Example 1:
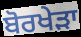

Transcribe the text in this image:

ਬੋਰਖੇੜਾ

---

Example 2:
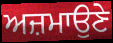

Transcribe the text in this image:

ਅਜ਼ਮਾਉਣੇ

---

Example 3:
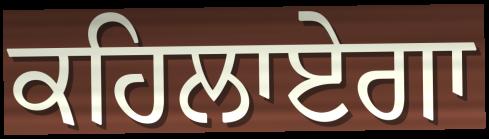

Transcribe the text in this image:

ਕਹਿਲਾਏਗਾ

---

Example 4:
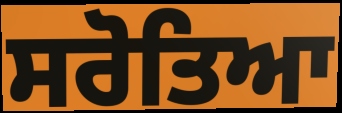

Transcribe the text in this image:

ਸਰੋਤਿਆ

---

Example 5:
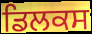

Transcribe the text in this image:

ਡਿਲਕਸ